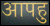
आपहु